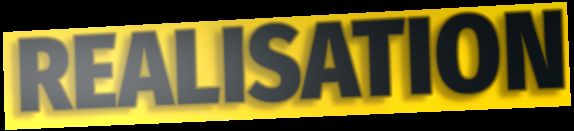
REALISATION